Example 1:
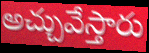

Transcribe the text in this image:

అచ్చువేస్తారు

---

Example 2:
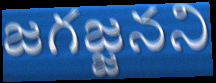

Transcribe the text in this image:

జగజ్జనని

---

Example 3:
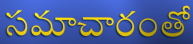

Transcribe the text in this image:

సమాచారంతో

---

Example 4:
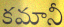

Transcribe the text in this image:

కమానీ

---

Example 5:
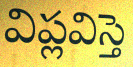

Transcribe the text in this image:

విప్లవిస్తె